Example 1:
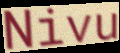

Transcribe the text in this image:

Nivu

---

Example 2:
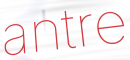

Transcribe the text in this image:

antre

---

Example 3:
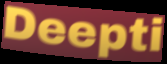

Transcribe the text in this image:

Deepti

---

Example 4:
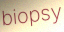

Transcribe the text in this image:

biopsy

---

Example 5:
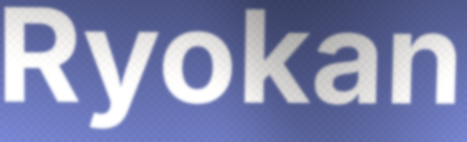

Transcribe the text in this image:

Ryokan